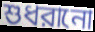
শুধরানো